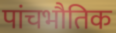
पांचभौतिक